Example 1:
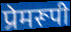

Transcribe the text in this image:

प्रेमरूपी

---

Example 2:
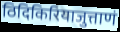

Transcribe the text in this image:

ठिदिकिरियाजुत्ताणं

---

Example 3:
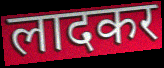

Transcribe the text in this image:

लादकर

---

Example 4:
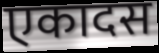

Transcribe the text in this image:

एकादस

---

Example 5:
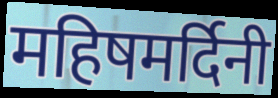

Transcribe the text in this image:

महिषमर्दिनी